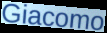
Giacomo